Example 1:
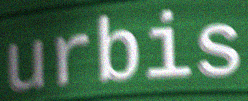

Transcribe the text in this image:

urbis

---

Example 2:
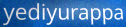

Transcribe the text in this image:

yediyurappa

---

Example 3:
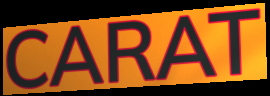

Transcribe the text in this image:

CARAT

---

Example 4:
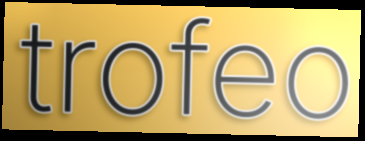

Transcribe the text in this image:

trofeo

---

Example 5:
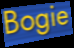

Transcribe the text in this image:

Bogie